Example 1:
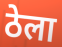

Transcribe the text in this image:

ठेला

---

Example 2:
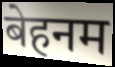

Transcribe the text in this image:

बेहनम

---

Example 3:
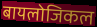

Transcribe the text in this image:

बायलोजिकल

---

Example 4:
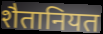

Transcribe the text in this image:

शैतानियत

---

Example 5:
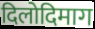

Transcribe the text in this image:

दिलोदिमाग